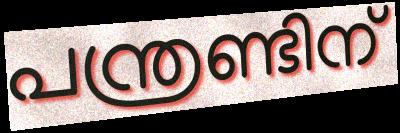
പന്ത്രണ്ടിന്